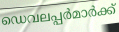
ഡെവലപ്പർമാർക്ക്